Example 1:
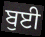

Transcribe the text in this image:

ਬੁਈ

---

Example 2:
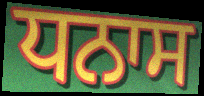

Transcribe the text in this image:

ਧਨਾਸ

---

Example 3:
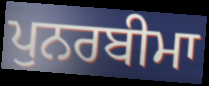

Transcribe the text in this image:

ਪੁਨਰਬੀਮਾ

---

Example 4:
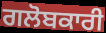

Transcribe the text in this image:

ਗਲੋਬਕਾਰੀ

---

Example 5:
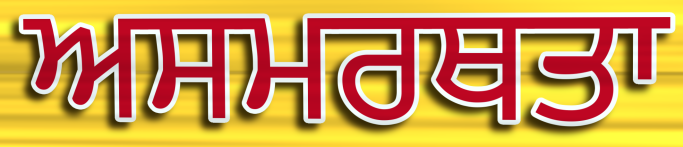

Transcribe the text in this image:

ਅਸਮਰਥਤਾ